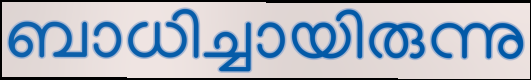
ബാധിച്ചായിരുന്നു